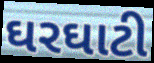
ઘરઘાટી